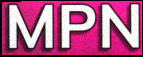
MPN